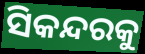
ସିକନ୍ଦରକୁ